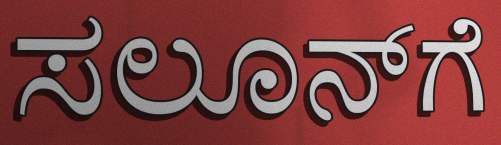
ಸಲೂನ್‍ಗೆ